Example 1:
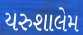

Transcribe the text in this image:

યરુશાલેમ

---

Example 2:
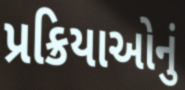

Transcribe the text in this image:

પ્રક્રિયાઓનું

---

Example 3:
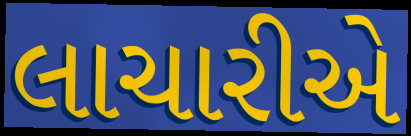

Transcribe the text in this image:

લાચારીએ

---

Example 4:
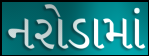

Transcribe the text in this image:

નરોડામાં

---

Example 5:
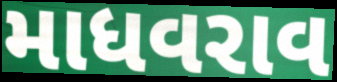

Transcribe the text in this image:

માધવરાવ